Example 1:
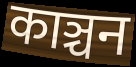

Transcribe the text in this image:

काञ्चन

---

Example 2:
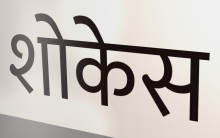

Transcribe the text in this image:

शोकेस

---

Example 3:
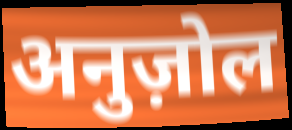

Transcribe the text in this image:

अनुज़ोल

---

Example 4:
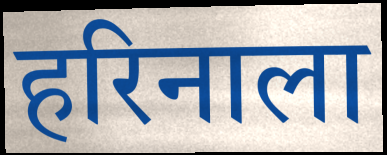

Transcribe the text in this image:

हरिनाला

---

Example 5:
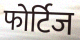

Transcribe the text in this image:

फोर्टिज